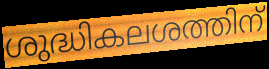
ശുദ്ധികലശത്തിന്